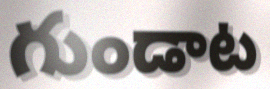
గుండాట